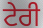
ਟੇਰੀ